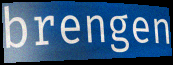
brengen